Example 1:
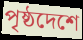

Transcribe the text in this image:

পৃষ্ঠদেশে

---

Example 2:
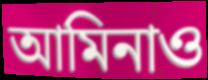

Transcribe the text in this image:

আমিনাও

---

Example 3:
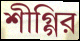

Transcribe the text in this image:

শীগ্গির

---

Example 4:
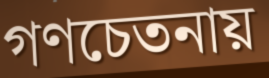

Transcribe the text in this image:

গণচেতনায়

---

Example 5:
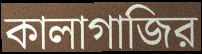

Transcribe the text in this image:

কালাগাজির